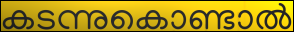
കടന്നുകൊണ്ടാൽ